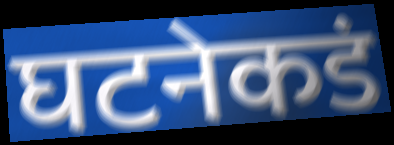
घटनेकडं